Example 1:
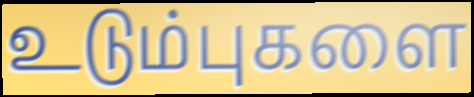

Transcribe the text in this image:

உடும்புகளை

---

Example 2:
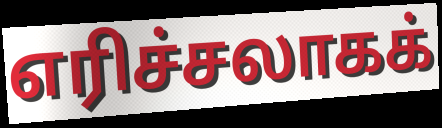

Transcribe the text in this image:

எரிச்சலாகக்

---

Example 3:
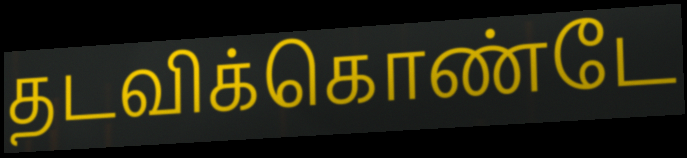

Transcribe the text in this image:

தடவிக்கொண்டே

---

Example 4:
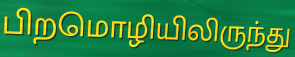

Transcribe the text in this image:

பிறமொழியிலிருந்து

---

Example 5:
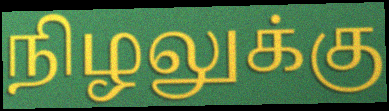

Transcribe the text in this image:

நிழலுக்கு